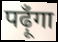
पढ़ूँगा